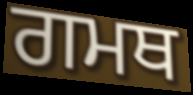
ਗਮਥ